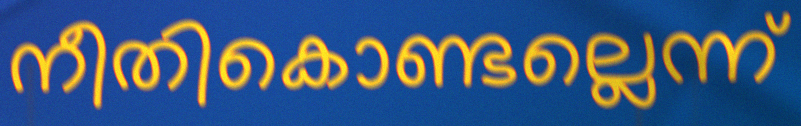
നീതികൊണ്ടല്ലെന്ന്